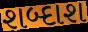
શબ્દાશ